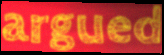
argued